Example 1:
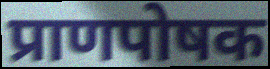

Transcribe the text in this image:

प्राणपोषक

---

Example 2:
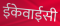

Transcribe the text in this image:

ईकेवाईसी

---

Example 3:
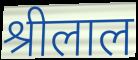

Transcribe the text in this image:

श्रीलाल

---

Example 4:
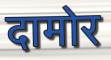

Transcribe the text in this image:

दामोर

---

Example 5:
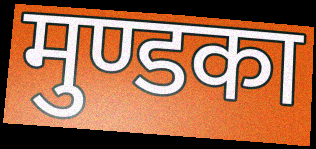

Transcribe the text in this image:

मुण्डका